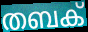
തബക്